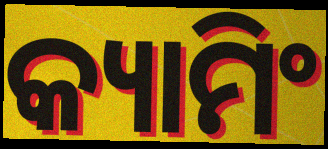
କ୍ୟାମିଂ